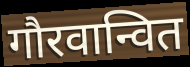
गौरवान्वित